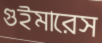
গুইমারেস